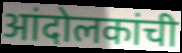
आंदोलकांची